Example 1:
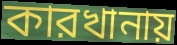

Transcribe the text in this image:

কারখানায়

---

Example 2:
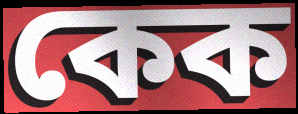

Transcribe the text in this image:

কেক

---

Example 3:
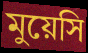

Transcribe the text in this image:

মুয়েসি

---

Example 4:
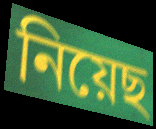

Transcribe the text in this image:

নিয়েছ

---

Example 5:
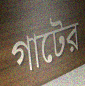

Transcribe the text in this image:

গাটের